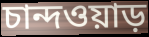
চান্দওয়াড়